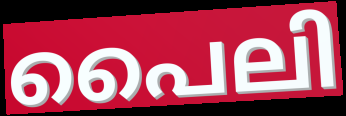
പൈലി